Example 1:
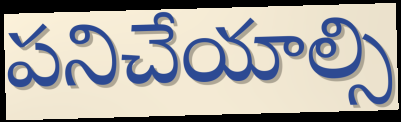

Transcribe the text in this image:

పనిచేయాల్సి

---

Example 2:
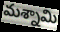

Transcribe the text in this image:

మశ్నామి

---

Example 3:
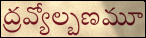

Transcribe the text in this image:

ద్రవ్యోల్బణమూ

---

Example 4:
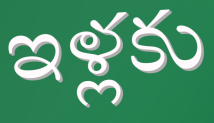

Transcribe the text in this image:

ఇళ్లకు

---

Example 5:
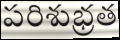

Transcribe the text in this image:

పరిశుభ్రత